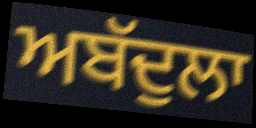
ਅਬੱਦੁਲਾ